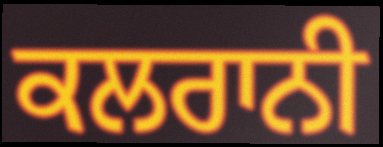
ਕਲਰਾਨੀ